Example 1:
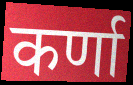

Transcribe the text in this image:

कर्णा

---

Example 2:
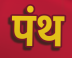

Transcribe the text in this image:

पंथ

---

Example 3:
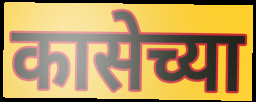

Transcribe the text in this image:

कासेच्या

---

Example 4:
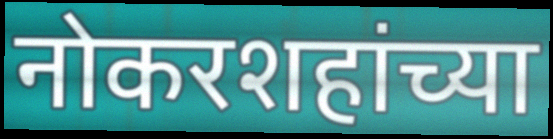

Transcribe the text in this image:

नोकरशहांच्या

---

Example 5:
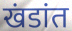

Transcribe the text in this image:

खंडांत